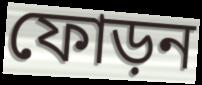
ফোড়ন